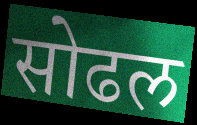
सोढल